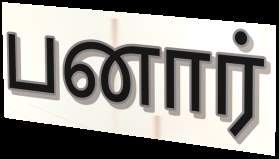
பனார்